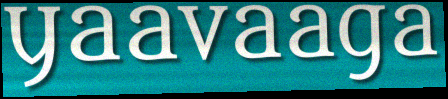
yaavaaga